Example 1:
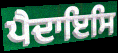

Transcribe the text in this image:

ਪੈਦਾਇਸਿ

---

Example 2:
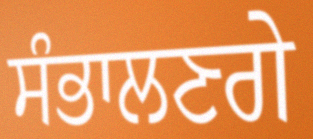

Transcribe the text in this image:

ਸੰਭਾਲਣਗੇ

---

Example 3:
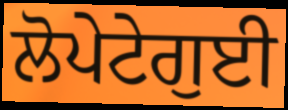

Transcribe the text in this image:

ਲੋਪੇਟੇਗੁਈ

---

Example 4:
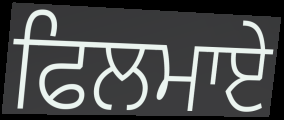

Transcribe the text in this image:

ਫਿਲਮਾਏ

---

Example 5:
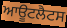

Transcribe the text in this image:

ਆਊਟਲੈਟਸ